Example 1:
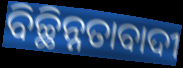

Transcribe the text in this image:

ବିଚ୍ଛିନ୍ନତାବାଦୀ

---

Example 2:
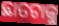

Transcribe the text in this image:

ଛାତଟାକୁ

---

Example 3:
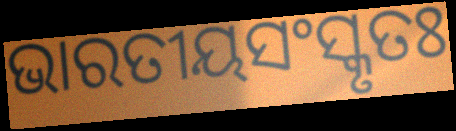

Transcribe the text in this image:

ଭାରତୀୟସଂସ୍କୃତଃ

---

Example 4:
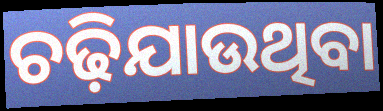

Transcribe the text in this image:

ଚଢ଼ିଯାଉଥିବା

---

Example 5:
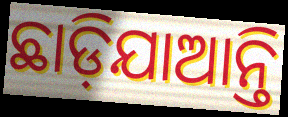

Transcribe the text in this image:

ଛାଡ଼ିଯାଆନ୍ତି